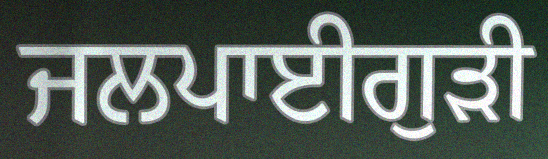
ਜਲਪਾਈਗੁਡ਼ੀ